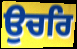
ਉਚਰਿ